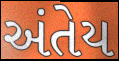
અંતેય